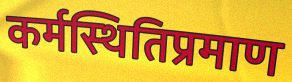
कर्मस्थितिप्रमाण